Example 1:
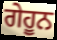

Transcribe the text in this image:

ਗੇਹੂਨ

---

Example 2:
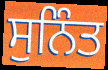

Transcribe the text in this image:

ਸੁਨਿੰਤ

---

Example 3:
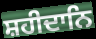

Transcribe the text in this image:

ਸ਼ਹੀਦਾਨਿ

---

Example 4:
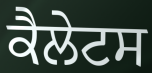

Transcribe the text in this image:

ਕੈਲੇਟਸ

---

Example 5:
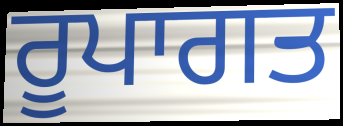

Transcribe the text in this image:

ਰੂਪਾਗਤ